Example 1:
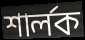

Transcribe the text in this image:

শার্লক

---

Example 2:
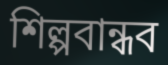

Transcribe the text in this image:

শিল্পবান্ধব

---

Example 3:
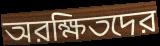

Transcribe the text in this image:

অরক্ষিতদের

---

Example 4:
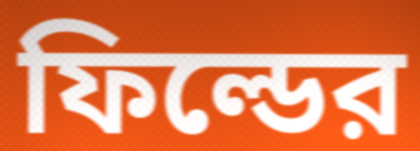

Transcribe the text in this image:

ফিল্ডের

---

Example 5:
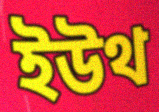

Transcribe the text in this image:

ইউথ